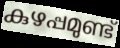
കുഴപ്പമുണ്ട്